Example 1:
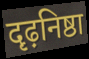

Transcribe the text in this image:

दृढ़निष्ठा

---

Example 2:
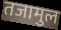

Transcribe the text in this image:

तजामुल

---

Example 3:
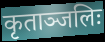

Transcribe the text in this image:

कृताञ्जलिः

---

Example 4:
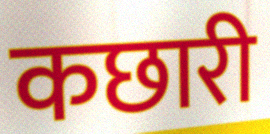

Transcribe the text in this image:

कछारी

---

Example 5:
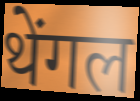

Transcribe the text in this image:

थेंगल